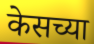
केसच्या